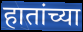
हातांच्या